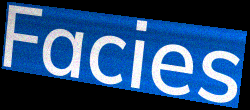
Facies